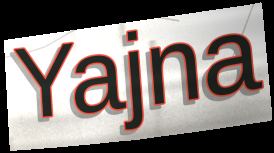
Yajna